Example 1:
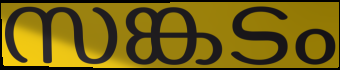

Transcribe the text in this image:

സങ്കടം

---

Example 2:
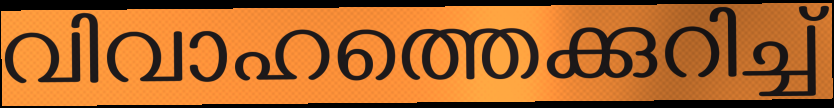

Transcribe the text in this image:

വിവാഹത്തെക്കുറിച്ച്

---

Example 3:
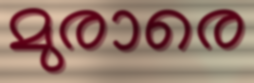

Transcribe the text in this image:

മുരാരെ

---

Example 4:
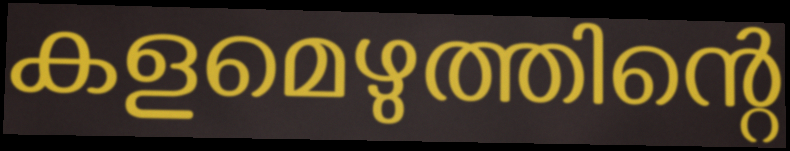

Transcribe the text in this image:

കളമെഴുത്തിന്റെ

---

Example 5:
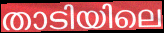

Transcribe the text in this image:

താടിയിലെ